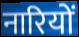
नारियों